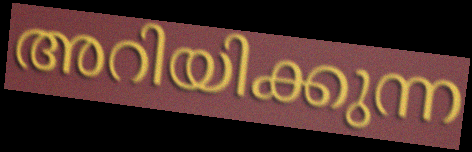
അറിയിക്കുന്ന